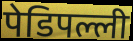
पेडिपल्ली